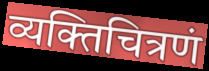
व्यक्तिचित्रणं